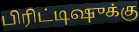
பிரிட்டிஷுக்கு